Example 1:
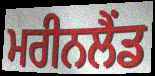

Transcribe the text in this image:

ਮਰੀਨਲੈਂਡ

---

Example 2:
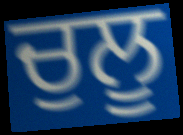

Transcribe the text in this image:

ਚੁਲੂ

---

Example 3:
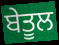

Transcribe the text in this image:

ਬੇਤੂਲ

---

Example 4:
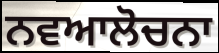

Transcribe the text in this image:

ਨਵਆਲੋਚਨਾ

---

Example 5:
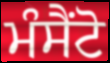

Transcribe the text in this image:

ਮੰਸੈਂਟੋ